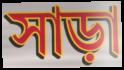
সাড়া